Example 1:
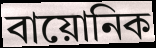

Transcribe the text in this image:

বায়োনিক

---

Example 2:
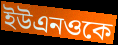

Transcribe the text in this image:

ইউএনওকে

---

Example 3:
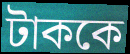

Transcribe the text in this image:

টাককে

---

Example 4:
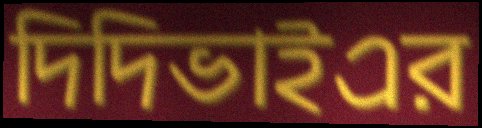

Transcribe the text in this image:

দিদিভাইএর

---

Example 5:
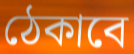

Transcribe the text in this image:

ঠেকাবে